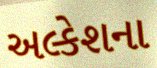
અલ્કેશના